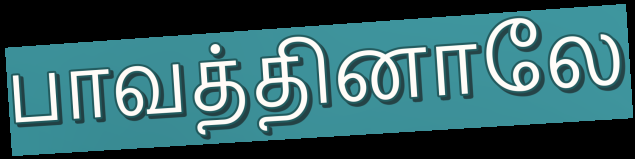
பாவத்தினாலே